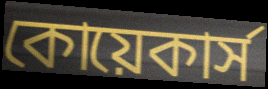
কোয়েকার্স